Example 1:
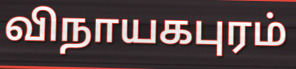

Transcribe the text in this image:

விநாயகபுரம்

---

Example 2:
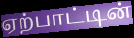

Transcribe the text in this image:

ஏற்பாட்டின்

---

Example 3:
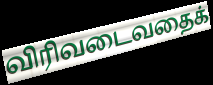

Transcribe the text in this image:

விரிவடைவதைக்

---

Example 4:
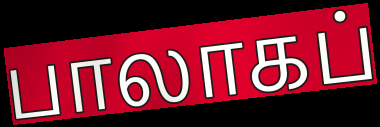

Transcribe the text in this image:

பாலாகப்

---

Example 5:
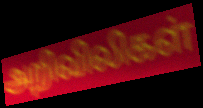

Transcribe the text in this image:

அறிவிலிகள்